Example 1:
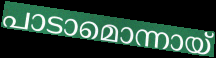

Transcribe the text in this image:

പാടാമൊന്നായ്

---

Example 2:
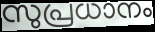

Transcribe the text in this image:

സുപ്രധാനം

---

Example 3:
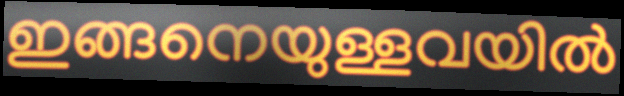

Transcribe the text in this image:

ഇങ്ങനെയുള്ളവയിൽ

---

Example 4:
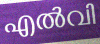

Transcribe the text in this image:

എൽവി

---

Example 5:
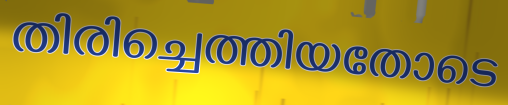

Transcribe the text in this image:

തിരിച്ചെത്തിയതോടെ